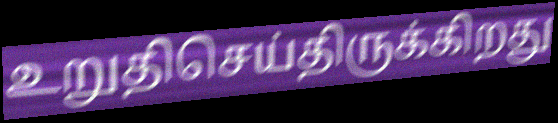
உறுதிசெய்திருக்கிறது